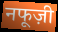
नफूज़ी